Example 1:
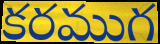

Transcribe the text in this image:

కరముగ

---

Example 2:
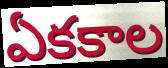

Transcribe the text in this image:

ఏకకాల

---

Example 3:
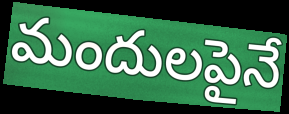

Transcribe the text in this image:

మందులపైనే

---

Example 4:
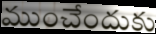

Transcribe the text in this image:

ముంచేందుకు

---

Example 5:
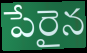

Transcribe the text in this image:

పేరైన